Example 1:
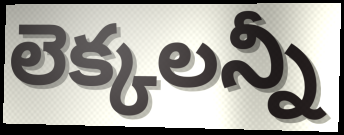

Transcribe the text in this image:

లెక్కలన్నీ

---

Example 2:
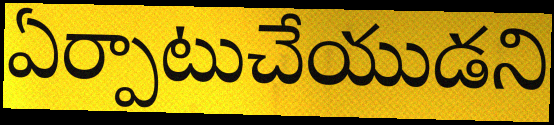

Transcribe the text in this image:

ఏర్పాటుచేయుడని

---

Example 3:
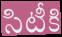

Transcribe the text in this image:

సిటీకి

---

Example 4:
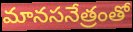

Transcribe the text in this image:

మానసనేత్రంతో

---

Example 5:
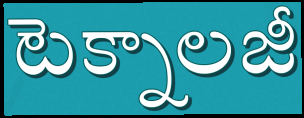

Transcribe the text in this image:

టెక్నాలజీ